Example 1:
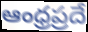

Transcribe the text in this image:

ఆంధ్రప్రదే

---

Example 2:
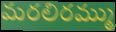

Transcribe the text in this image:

మరలిరమ్ము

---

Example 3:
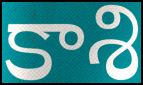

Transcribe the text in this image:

కాశి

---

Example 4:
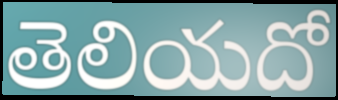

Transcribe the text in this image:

తెలియదో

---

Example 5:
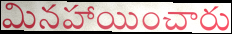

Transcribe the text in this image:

మినహాయించారు